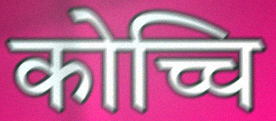
कोच्चि